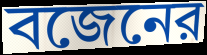
বজেনের